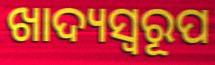
ଖାଦ୍ୟସ୍ୱରୂପ